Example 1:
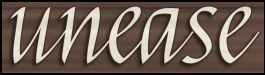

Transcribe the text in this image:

unease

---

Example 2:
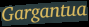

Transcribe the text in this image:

Gargantua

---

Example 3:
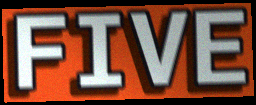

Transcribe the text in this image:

FIVE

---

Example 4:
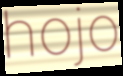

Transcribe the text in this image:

hojo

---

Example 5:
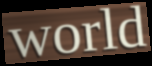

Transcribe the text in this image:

world